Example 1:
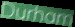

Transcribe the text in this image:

Durham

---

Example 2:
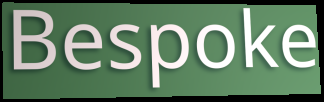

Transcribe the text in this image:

Bespoke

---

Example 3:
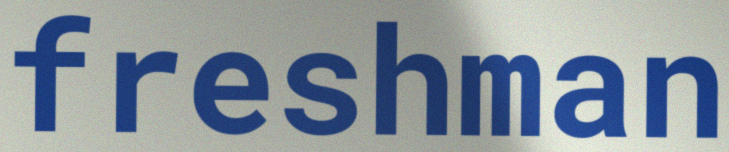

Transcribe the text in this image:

freshman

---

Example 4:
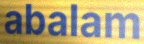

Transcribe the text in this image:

abalam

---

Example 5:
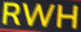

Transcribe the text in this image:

RWH